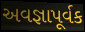
અવજ્ઞાપૂર્વક